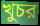
খুচর